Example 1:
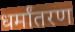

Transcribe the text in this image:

धर्मांतरण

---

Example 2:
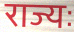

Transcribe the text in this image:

राज्यः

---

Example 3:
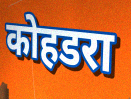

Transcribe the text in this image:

कोहडरा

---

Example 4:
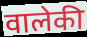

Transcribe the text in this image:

वालेकी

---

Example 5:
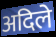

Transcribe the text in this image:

अदिले